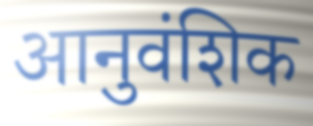
आनुवंशिक